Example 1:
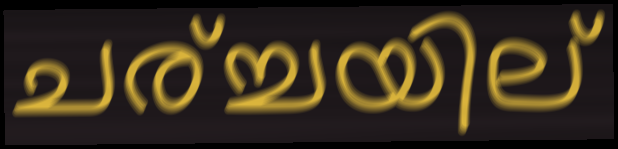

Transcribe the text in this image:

ചര്ച്ചയില്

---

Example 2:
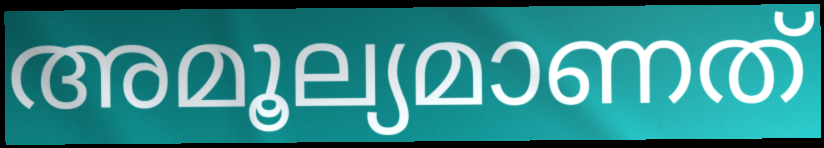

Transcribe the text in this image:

അമൂല്യമാണത്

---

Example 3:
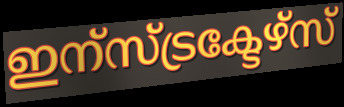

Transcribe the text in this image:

ഇന്സ്ട്രക്ടേഴ്സ്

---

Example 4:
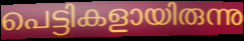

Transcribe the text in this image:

പെട്ടികളായിരുന്നു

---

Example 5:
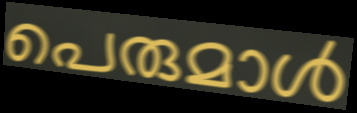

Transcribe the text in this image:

പെരുമാൾ